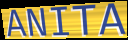
ANITA